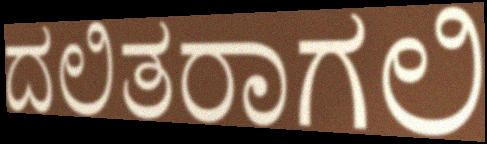
ದಲಿತರಾಗಲಿ